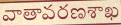
వాతావరణశాఖ